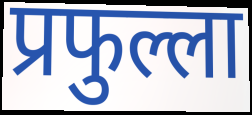
प्रफुल्ला